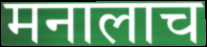
मनालाच